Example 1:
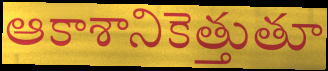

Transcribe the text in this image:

ఆకాశానికెత్తుతూ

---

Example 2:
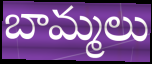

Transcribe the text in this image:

బామ్మలు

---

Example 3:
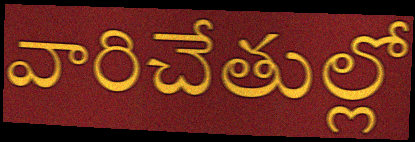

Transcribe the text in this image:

వారిచేతుల్లో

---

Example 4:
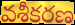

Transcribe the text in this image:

వశీకరణ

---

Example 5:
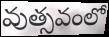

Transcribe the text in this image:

వుత్సవంలో